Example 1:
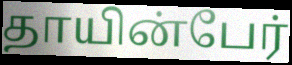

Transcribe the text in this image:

தாயின்பேர்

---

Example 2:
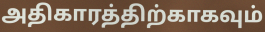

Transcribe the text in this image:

அதிகாரத்திற்காகவும்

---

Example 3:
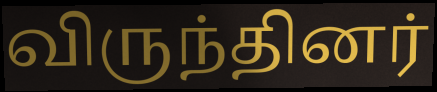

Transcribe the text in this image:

விருந்தினர்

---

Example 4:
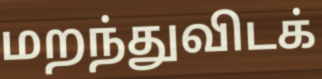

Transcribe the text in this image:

மறந்துவிடக்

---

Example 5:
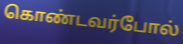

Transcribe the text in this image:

கொண்டவர்போல்